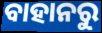
ବାହାନରୁ